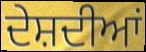
ਦੇਸ਼ਦੀਆਂ